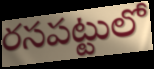
రసపట్టులో